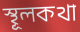
স্থূলকথা